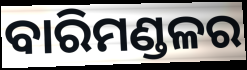
ବାରିମଣ୍ଡଳର